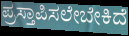
ಪ್ರಸ್ತಾಪಿಸಲೇಬೇಕಿದೆ